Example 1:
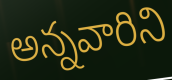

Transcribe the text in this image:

అన్నవారిని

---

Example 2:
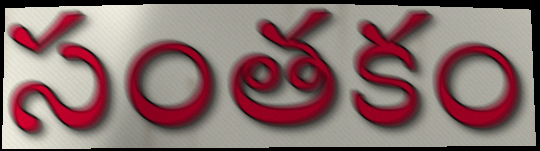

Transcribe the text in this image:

సంతకం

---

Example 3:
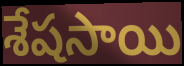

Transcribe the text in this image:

శేషసాయి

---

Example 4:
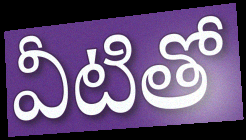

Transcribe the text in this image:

వీటితో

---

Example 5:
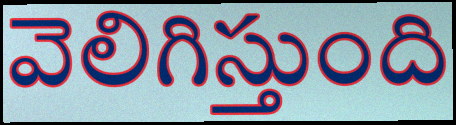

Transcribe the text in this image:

వెలిగిస్తుంది